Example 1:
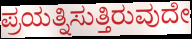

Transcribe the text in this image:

ಪ್ರಯತ್ನಿಸುತ್ತಿರುವುದೇ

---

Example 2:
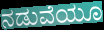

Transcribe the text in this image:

ನಡುವೆಯೂ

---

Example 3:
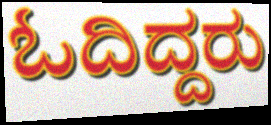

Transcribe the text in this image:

ಓದಿದ್ದರು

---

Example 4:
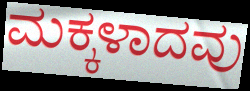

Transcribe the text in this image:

ಮಕ್ಕಳಾದವು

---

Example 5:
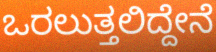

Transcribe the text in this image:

ಒರಲುತ್ತಲಿದ್ದೇನೆ